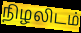
நிழலிடம்